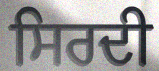
ਸਿਰਦੀ